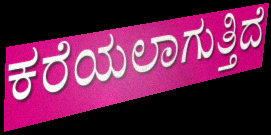
ಕರೆಯಲಾಗುತ್ತಿದೆ